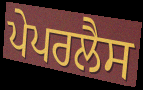
ਪੇਪਰਲੈਸ